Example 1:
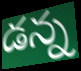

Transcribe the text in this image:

డన్న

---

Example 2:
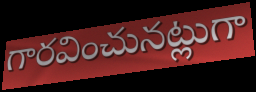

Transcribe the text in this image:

గారవించునట్లుగా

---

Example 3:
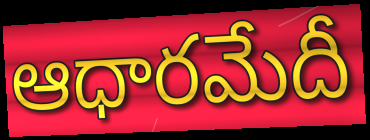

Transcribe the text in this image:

ఆధారమేదీ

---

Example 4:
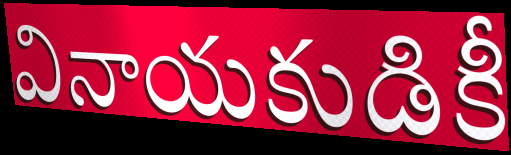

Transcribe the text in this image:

వినాయకుడికీ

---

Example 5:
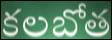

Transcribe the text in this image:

కలబోత